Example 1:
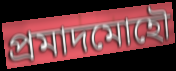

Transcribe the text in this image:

প্রমাদমোহৌ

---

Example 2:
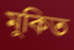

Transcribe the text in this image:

মুকিত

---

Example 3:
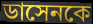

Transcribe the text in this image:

ডাসেনকে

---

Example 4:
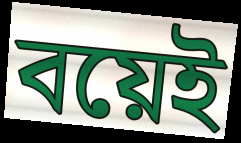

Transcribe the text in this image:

বয়েই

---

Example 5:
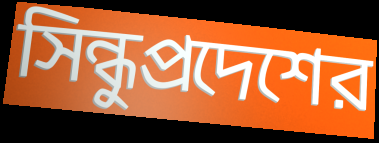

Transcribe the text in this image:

সিন্ধুপ্রদেশের